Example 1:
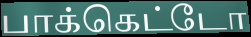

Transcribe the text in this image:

பாக்கெட்டோ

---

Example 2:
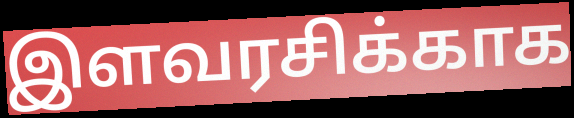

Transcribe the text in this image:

இளவரசிக்காக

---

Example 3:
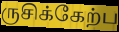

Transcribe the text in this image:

ருசிக்கேற்ப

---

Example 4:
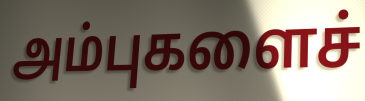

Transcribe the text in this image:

அம்புகளைச்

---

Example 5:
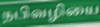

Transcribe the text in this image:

நபிவழியை